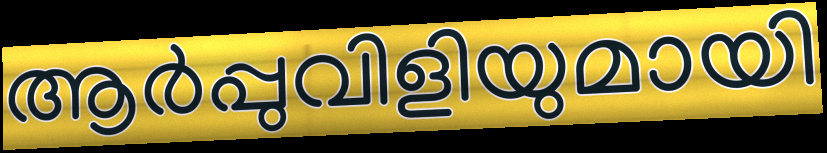
ആർപ്പുവിളിയുമായി